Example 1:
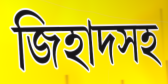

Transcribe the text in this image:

জিহাদসহ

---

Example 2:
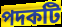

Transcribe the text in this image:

পদকটি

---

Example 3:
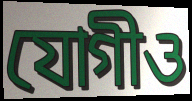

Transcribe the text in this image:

যোগীও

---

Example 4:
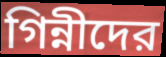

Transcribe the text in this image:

গিন্নীদের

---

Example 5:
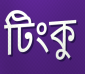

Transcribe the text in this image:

টিংকু